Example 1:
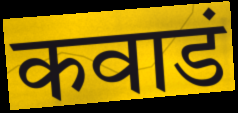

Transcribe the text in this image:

कवाडं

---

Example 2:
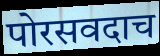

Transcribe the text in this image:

पोरसवदाच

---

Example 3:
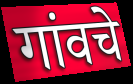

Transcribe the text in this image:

गांवचे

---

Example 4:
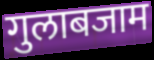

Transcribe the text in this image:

गुलाबजाम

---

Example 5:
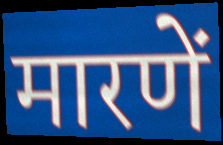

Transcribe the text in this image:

मारणें